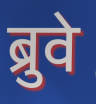
ब्रुवे